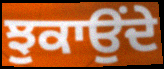
ਝੁਕਾਉੰਦੇ